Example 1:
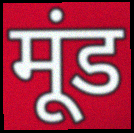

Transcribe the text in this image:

मूंड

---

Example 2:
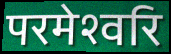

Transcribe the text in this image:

परमेश्वरि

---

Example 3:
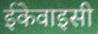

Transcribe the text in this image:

ईकेवाइसी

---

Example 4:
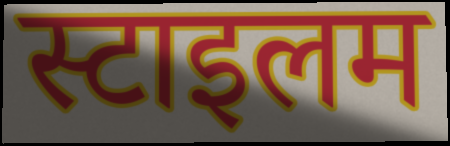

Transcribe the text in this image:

स्टाइलम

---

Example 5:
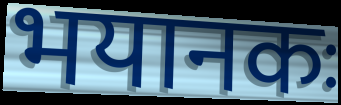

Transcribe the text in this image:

भयानकः